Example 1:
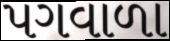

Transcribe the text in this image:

પગવાળા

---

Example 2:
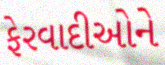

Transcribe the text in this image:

ફેરવાદીઓને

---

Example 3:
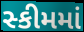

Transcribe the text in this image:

સ્કીમમાં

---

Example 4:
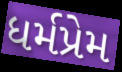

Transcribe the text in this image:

ધર્મપ્રેમ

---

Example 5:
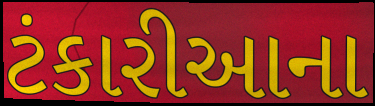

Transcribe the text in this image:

ટંકારીઆના